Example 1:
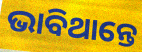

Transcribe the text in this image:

ଭାବିଥାନ୍ତେ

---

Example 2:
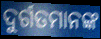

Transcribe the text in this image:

ଦୁର୍ଗତମାନଙ୍କ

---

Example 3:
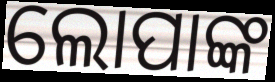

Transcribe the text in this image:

ଲୋପାଙ୍କ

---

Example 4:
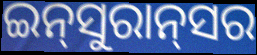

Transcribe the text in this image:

ଇନ୍‍ସୁରାନ୍‍ସର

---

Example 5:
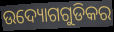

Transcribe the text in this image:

ଉଦ୍ୟୋଗଗୁଡିକର